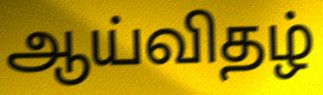
ஆய்விதழ்